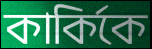
কার্কিকে